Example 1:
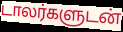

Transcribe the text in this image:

டாலர்களுடன்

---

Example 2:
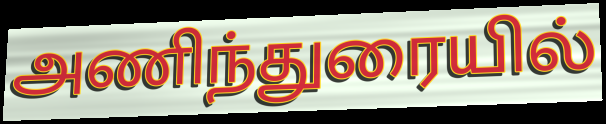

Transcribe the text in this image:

அணிந்துரையில்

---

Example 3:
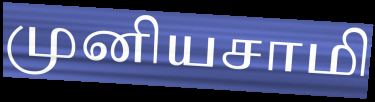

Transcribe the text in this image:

முனியசாமி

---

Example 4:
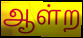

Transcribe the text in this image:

ஆள்ற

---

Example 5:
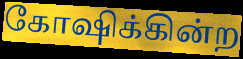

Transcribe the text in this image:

கோஷிக்கின்ற